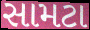
સામટા